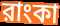
রাংকা